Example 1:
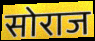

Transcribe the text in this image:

सोराज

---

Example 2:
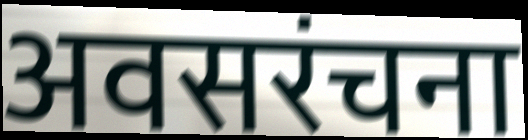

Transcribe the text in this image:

अवसरंचना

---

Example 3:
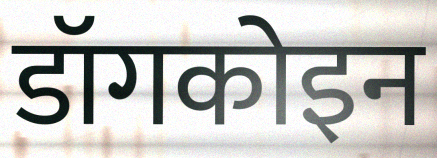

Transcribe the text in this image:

डॉगकोइन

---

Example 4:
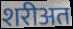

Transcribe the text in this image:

शरीअत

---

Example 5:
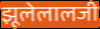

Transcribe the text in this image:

झूलेलालजी